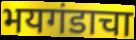
भयगंडाचा